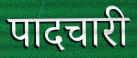
पादचारी